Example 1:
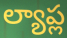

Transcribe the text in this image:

ల్యాప్ల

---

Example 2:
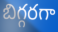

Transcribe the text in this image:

బిగ్గరగా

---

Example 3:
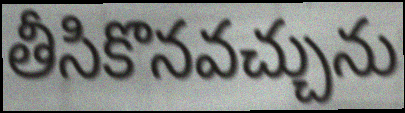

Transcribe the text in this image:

తీసికొనవచ్చును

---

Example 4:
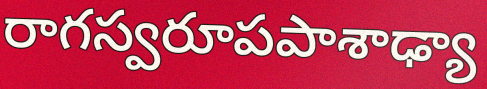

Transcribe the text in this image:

రాగస్వరూపపాశాఢ్యా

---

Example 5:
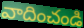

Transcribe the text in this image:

వాదించండి